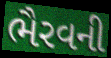
ભૈરવની